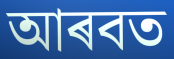
আৰবত